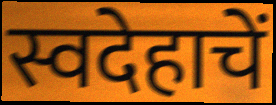
स्वदेहाचें